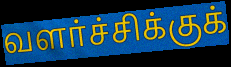
வளர்ச்சிக்குக்